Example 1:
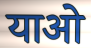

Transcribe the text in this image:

याओ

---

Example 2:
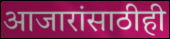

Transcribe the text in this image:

आजारांसाठीही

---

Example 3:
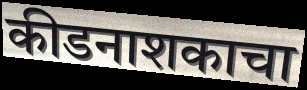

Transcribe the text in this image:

कीडनाशकाचा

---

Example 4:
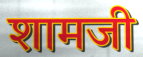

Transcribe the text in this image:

शामजी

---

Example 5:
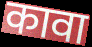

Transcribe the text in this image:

कावा